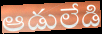
ఆడులేడి